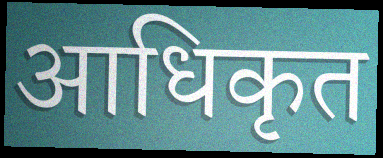
आधिकृत